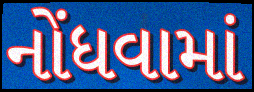
નોંધવામાં